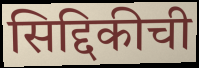
सिद्दिकीची